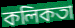
কলিকতা